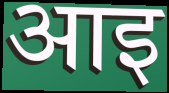
आइ